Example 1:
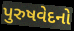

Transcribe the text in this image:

પુરુષવેદનો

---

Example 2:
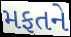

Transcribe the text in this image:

મફતને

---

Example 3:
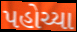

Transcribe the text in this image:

પહોચ્યા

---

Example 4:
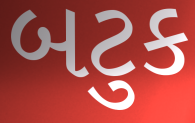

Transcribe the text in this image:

બટુક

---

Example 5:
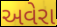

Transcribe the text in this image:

અવેરા